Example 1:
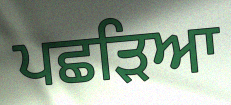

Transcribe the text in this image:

ਪਛੜਿਆ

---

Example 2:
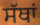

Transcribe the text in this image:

ਸੱਥਾਂ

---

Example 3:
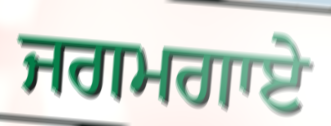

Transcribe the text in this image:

ਜਗਮਗਾਏ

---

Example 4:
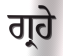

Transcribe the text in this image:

ਗ੍ਰਹੇ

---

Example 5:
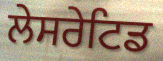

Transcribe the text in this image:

ਲੇਸਰੇਟਿਡ